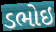
ડભોઇ